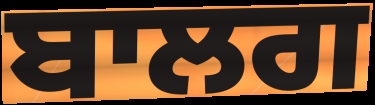
ਬਾਲਗ